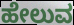
ಹೇಲುವ